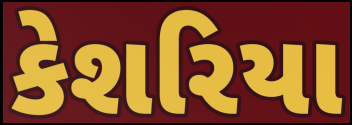
કેશરિયા